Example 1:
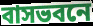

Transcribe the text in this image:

বাসভবনে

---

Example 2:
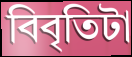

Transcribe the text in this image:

বিবৃতিটা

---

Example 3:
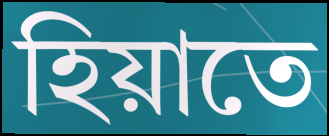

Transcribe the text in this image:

হিয়াতে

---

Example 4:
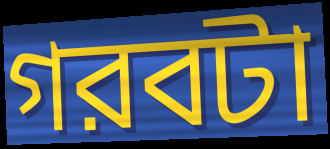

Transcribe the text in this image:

গরবটা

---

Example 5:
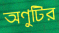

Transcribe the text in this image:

অণুটির